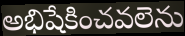
అభిషేకించవలెను